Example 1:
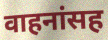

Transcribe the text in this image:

वाहनांसह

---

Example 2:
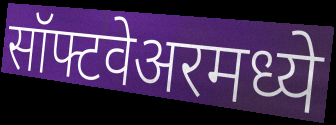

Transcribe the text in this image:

सॉफ्टवेअरमध्ये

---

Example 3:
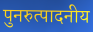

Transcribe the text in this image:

पुनरुत्पादनीय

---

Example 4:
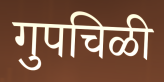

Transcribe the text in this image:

गुपचिळी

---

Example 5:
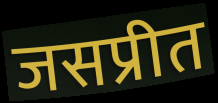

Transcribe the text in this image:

जसप्रीत